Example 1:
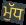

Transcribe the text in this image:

ਮੁੱਧ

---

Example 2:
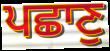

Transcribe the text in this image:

ਪਛਾਣੁ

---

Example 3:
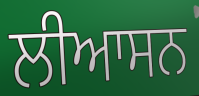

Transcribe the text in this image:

ਲੀਆਸਨ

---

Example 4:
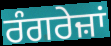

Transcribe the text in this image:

ਰੰਗਰੇਜ਼ਾਂ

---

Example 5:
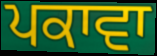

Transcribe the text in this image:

ਪਕਾਵਾ